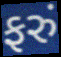
ફરું